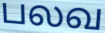
பலவ